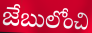
జేబులోంచి